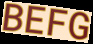
BEFG